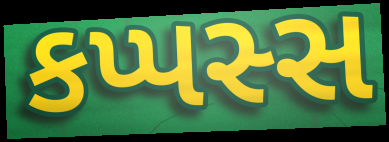
કપ્પસ્સ